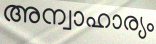
അന്വാഹാര്യം